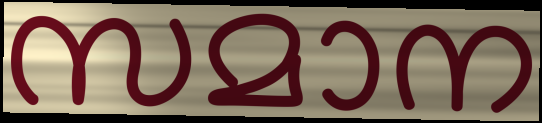
സമാന